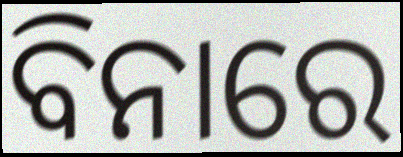
ବିନାରେ